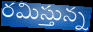
రమిస్తున్న